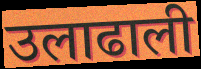
उलाढाली